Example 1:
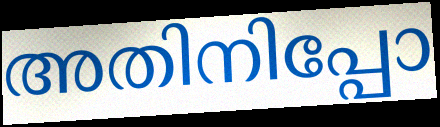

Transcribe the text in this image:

അതിനിപ്പോ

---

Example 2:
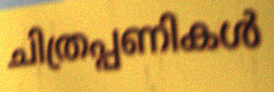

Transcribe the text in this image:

ചിത്രപ്പണികൾ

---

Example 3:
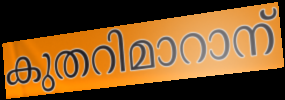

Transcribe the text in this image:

കുതറിമാറാന്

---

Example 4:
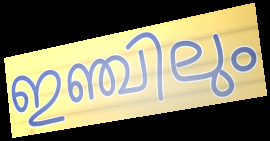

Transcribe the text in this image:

ഇഞ്ചിലും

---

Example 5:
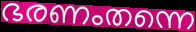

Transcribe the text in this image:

ഭരണംതന്നെ